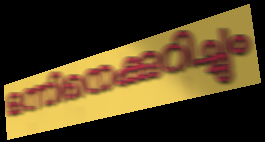
ഒന്നിനെക്കുറിച്ചും